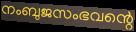
നംബുജസംഭവന്റെ